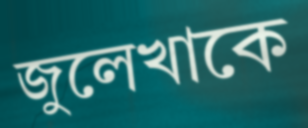
জুলেখাকে